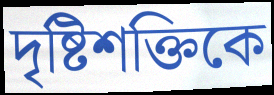
দৃষ্টিশক্তিকে